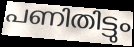
പണിതിട്ടും